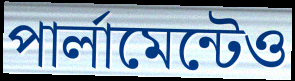
পার্লামেন্টেও